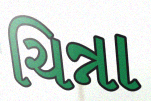
ચિન્ના